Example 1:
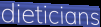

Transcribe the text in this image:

dieticians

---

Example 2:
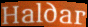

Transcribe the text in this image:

Haldar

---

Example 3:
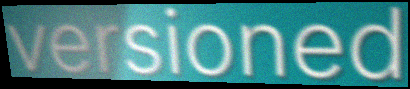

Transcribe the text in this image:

versioned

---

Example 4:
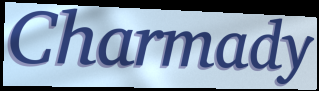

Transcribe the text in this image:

Charmady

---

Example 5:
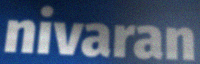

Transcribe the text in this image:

nivaran